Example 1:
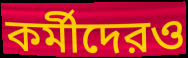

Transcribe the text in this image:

কর্মীদেরও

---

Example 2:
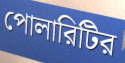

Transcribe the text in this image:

পোলারিটির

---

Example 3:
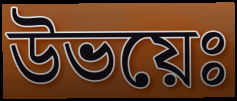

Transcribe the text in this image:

উভয়েঃ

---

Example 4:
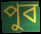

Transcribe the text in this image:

পুব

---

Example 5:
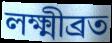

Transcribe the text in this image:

লক্ষ্মীব্রত